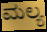
ಮಲ್ಯ